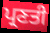
ਪ੍ਰਣਤੀ